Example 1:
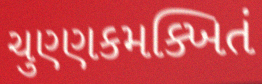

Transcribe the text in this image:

ચુણ્ણકમક્ખિતં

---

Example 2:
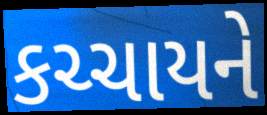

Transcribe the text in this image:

કચ્ચાયને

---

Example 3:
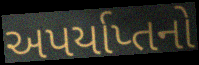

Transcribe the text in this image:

અપર્યાપ્તનો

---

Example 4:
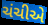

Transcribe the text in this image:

ચંચીએ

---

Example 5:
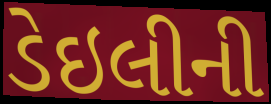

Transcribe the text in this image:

ડેઇલીની